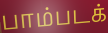
பாம்படக்